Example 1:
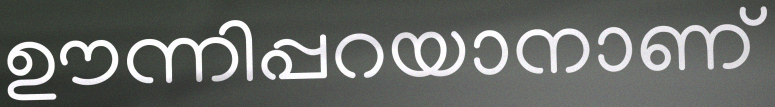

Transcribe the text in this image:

ഊന്നിപ്പറയാനാണ്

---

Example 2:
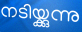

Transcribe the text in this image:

നടിയ്ക്കുന്നു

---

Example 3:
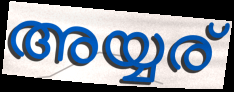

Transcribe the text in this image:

അയ്യര്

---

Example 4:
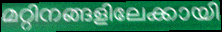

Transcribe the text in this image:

മറ്റിനങ്ങളിലേക്കായി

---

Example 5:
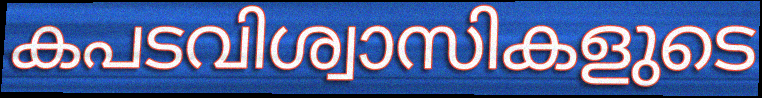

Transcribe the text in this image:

കപടവിശ്വാസികളുടെ